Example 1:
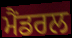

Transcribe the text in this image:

ਮੈਂਡਰਲ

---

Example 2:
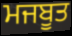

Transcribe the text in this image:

ਮਜਬੂਤ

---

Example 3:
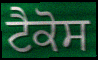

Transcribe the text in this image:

ਟੈਕੋਸ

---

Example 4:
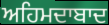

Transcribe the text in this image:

ਅਹਿਮਦਾਬਾਦ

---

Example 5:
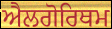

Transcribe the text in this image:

ਐਲਗੋਰਿਥਮ